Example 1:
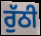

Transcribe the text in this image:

ਰੁੱਠੀ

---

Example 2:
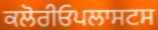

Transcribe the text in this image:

ਕਲੋਰੀਓਪਲਾਸਟਸ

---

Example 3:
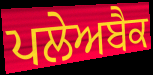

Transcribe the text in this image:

ਪਲੇਅਬੈਕ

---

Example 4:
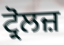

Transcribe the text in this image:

ਟ੍ਰੋਲਜ਼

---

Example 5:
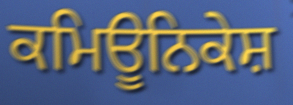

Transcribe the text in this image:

ਕਮਿਊਨਿਕੇਸ਼